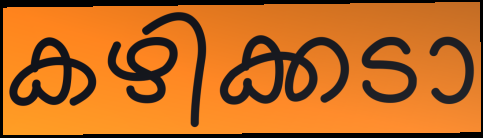
കഴിക്കടാ